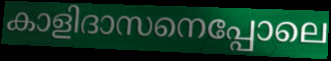
കാളിദാസനെപ്പോലെ